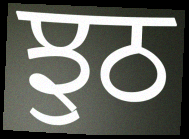
ਝੁਠ